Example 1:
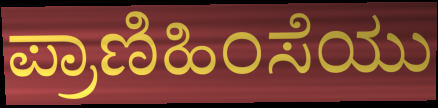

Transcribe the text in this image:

ಪ್ರಾಣಿಹಿಂಸೆಯು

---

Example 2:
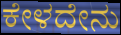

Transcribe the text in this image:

ಕೇಳದೇನು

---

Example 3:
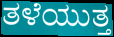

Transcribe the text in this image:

ತಳೆಯುತ್ತ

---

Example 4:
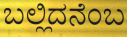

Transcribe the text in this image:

ಬಲ್ಲಿದನೆಂಬ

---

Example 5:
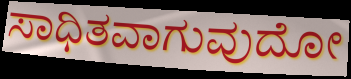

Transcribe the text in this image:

ಸಾಧಿತವಾಗುವುದೋ